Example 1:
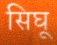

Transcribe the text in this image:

सिघू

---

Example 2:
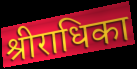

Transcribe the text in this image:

श्रीराधिका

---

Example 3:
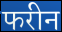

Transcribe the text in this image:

फरीन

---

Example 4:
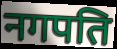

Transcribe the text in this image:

नगपति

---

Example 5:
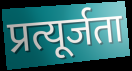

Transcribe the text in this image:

प्रत्यूर्जता